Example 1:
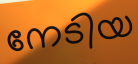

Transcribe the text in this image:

നേടിയ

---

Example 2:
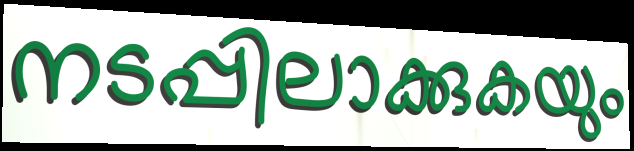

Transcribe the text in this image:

നടപ്പിലാക്കുകയും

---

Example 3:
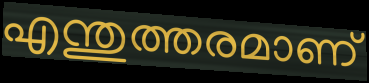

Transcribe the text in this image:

എന്തുത്തരമാണ്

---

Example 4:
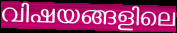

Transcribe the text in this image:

വിഷയങ്ങളിലെ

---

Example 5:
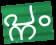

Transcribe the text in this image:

പ്നം